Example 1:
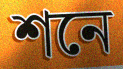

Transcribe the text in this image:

শনে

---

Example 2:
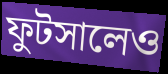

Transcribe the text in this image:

ফুটসালেও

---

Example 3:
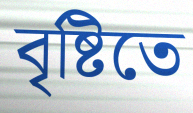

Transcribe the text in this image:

বৃষ্টিতে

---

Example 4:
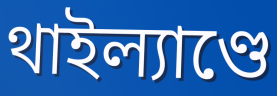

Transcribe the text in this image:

থাইল্যাণ্ডে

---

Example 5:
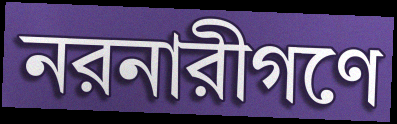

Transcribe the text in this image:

নরনারীগণে